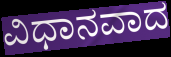
ವಿಧಾನವಾದ